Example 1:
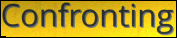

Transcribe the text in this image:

Confronting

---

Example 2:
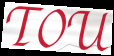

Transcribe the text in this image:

TOU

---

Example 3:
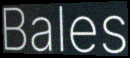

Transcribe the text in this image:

Bales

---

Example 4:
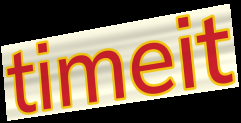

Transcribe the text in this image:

timeit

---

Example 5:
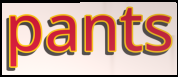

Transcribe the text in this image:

pants